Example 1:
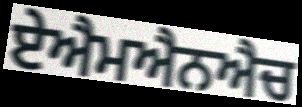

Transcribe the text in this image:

ਏਐਮਐਨਐਚ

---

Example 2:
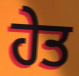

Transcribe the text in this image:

ਹੇਤ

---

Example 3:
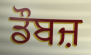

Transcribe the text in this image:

ਡੌਬਜ਼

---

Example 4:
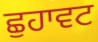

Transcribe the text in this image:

ਛੁਹਾਵਟ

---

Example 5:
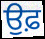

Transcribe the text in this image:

ਉਫ਼